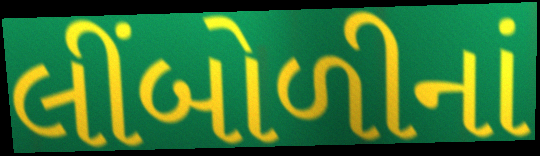
લીંબોળીનાં